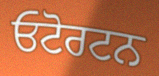
ਓਟੋਰਟਨ